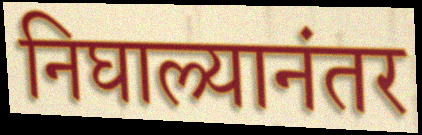
निघाल्यानंतर